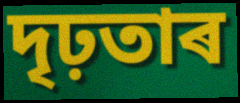
দৃঢ়তাৰ